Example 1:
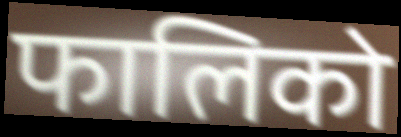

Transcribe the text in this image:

फालिको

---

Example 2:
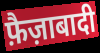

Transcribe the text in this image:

फ़ैज़ाबादी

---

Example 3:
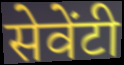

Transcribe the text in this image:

सेवेंटी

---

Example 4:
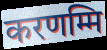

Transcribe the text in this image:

करणम्मि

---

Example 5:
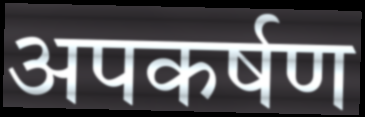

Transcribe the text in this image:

अपकर्षण